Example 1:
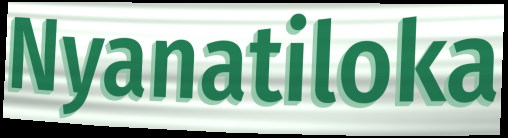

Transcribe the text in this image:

Nyanatiloka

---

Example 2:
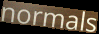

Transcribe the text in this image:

normals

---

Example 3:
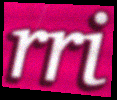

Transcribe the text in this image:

rri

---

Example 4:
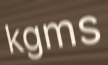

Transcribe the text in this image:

kgms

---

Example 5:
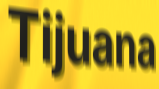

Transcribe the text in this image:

Tijuana